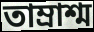
তাম্রাশ্ম